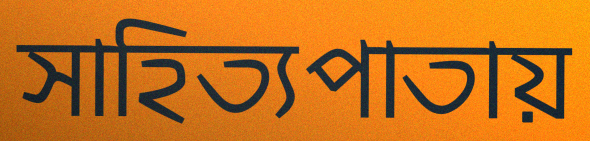
সাহিত্যপাতায়